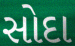
સોદા